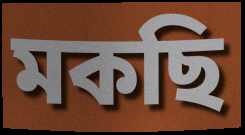
মকছি